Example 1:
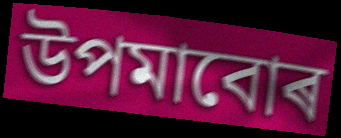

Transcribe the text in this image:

উপমাবোৰ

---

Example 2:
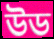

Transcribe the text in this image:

উড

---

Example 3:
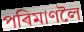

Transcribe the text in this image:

পৰিমাণলৈ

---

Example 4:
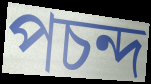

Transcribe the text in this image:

পচন্দ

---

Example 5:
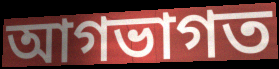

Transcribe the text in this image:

আগভাগত